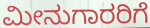
ಮೀನುಗಾರರಿಗೆ